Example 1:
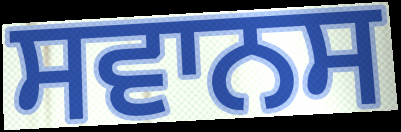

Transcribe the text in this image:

ਸਵਾਨਸ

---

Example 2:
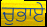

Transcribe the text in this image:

ਚੁਭਾਏ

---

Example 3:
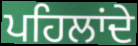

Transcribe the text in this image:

ਪਹਿਲਾਂਦੇ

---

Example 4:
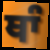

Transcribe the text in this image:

ਥਾੰ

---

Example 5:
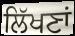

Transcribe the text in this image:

ਲਿੱਖਣਾਂ